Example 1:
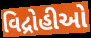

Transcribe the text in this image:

વિદ્રોહીઓ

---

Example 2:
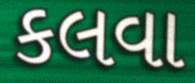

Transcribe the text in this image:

કલવા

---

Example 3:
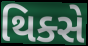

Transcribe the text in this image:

થિક્સે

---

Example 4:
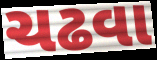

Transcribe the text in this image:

ચઢવા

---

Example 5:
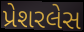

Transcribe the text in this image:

પ્રેશરલેસ